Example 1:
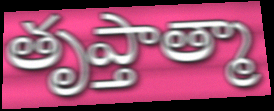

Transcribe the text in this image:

తృప్తాత్మా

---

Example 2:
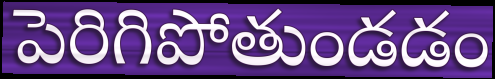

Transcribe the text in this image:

పెరిగిపోతుండడం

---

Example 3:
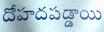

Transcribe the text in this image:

దోహదపడ్డాయి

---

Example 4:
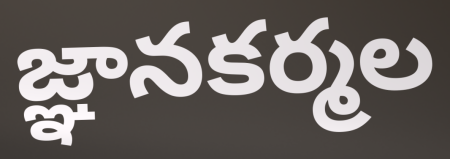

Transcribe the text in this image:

జ్ఞానకర్మల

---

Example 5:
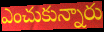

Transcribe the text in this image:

ఎంచుకున్నారు